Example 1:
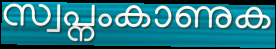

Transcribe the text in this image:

സ്വപ്നംകാണുക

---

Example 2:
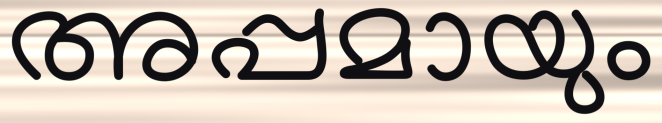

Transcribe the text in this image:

അപ്പമായും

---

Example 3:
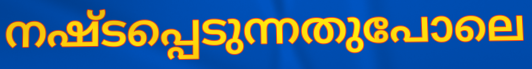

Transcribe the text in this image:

നഷ്ടപ്പെടുന്നതുപോലെ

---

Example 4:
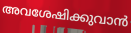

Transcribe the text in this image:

അവശേഷിക്കുവാൻ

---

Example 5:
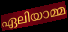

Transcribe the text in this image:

ഏലിയാമ്മ